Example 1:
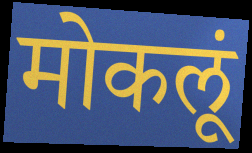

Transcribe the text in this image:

मोकलूं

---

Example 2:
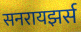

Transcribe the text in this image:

सनरायझर्स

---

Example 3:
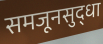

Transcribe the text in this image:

समजूनसुद्धा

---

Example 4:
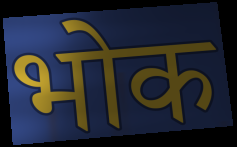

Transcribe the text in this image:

भोक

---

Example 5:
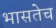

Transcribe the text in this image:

भासतेच